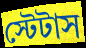
স্টেটাস